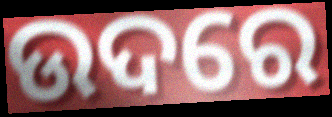
ଉଦରେ